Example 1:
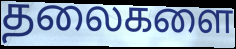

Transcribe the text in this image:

தலைகளை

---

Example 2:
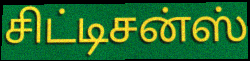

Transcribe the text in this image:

சிட்டிசன்ஸ்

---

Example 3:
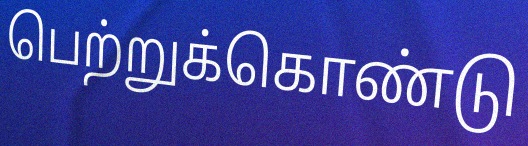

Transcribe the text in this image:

பெற்றுக்கொண்டு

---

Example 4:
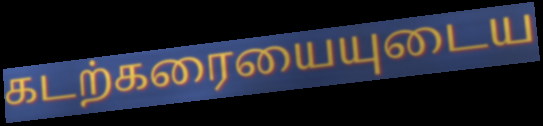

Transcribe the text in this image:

கடற்கரையையுடைய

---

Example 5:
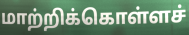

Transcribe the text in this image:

மாற்றிக்கொள்ளச்